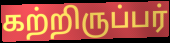
கற்றிருப்பர்